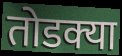
तोडक्‍या